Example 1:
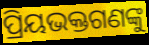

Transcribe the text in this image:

ପ୍ରିୟଭକ୍ତଗଣଙ୍କୁ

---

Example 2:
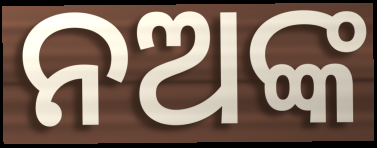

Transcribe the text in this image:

ନଅଙ୍କ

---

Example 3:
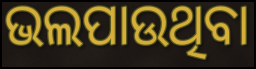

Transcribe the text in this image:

ଭଲପାଉଥିବା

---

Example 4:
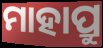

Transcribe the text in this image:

ମାହାପ୍ରୁ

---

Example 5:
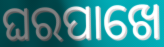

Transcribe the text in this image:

ଘରପାଖେ